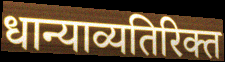
धान्याव्यतिरिक्त